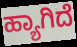
ಹ್ಯಾಗಿದೆ